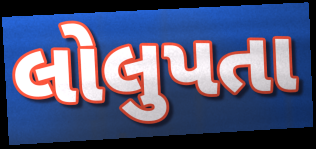
લોલુપતા